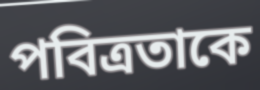
পবিত্রতাকে